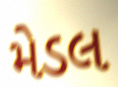
મેડલ